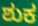
ಶುಕ